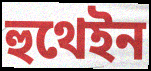
হুথেইন